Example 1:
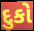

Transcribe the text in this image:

દુકો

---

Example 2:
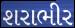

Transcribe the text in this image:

શરાભીર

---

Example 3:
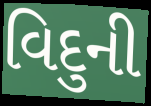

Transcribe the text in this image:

વિદુની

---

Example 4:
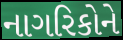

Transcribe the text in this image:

નાગરિકોને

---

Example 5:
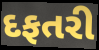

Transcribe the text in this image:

દફતરી